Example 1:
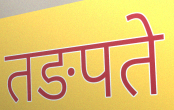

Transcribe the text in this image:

तङपते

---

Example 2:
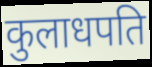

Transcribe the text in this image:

कुलाधपति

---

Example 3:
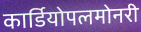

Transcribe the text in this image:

कार्डियोपलमोनरी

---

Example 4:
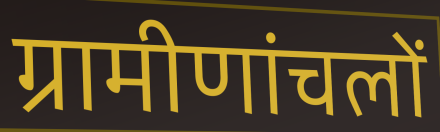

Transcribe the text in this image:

ग्रामीणांचलों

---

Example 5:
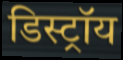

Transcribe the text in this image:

डिस्ट्रॉय